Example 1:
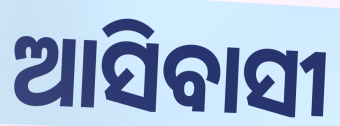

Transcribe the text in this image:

ଆସିବାସୀ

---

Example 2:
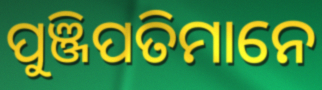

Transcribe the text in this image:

ପୁଞ୍ଜିପତିମାନେ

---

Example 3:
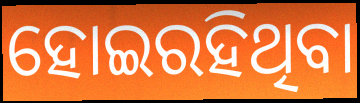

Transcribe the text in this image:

ହୋଇରହିଥିବା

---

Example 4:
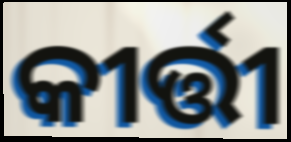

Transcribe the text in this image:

କୀର୍ତ୍ତୀ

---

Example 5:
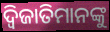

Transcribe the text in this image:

ଦ୍ୱିଜାତିମାନଙ୍କୁ